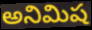
అనిమిష